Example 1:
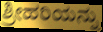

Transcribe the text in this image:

ಶ್ರೀಹರಿಯನ್ನು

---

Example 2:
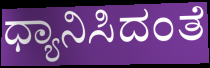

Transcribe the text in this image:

ಧ್ಯಾನಿಸಿದಂತೆ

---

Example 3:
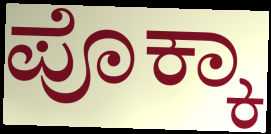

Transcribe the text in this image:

ಪೊಕ್ಕಾ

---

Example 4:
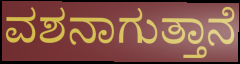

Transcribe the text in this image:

ವಶನಾಗುತ್ತಾನೆ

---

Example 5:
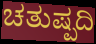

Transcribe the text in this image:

ಚತುಷ್ಪದಿ